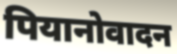
पियानोवादन